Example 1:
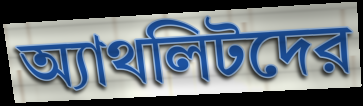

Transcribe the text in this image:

অ্যাথলিটদের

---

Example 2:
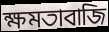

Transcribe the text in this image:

ক্ষমতাবাজি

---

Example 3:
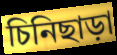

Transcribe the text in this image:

চিনিছাড়া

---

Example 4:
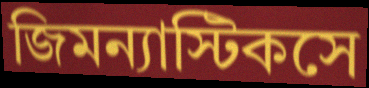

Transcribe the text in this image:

জিমন্যাস্টিকসে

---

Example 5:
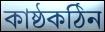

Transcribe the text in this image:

কাষ্ঠকঠিন